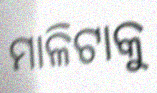
ମାଳିଟାକୁ